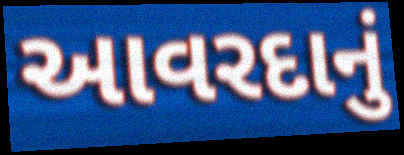
આવરદાનું